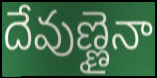
దేవుణ్ణైనా